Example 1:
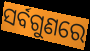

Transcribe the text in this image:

ସର୍ବଗୁଣରେ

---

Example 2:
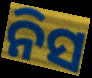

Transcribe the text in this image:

ନିସ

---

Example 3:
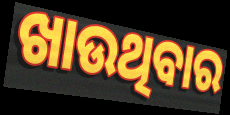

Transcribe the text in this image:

ଖାଉଥିବାର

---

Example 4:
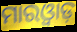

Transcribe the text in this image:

ମାରଓ୍ୱାଡ଼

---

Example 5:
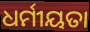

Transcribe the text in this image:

ଧର୍ମୀୟତା